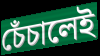
চেঁচালেই